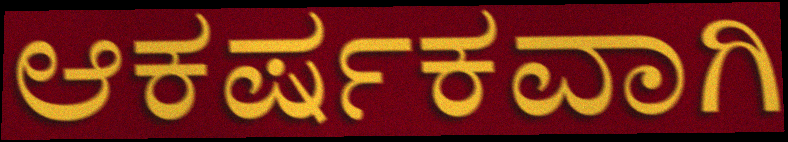
ಆಕರ್ಷಕವಾಗಿ